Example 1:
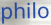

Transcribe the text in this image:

philo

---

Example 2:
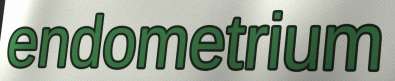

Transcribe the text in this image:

endometrium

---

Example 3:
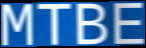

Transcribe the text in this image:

MTBE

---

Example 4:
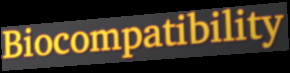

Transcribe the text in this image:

Biocompatibility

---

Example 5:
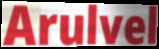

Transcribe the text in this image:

Arulvel